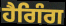
ਹੈਗਿੰਗ